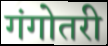
गंगोतरी